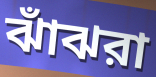
ঝাঁঝরা